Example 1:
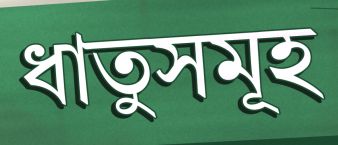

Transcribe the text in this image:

ধাতুসমূহ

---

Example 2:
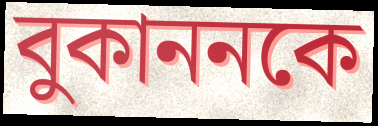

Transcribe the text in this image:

বুকাননকে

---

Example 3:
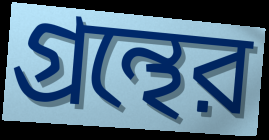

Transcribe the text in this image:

গ্রন্থের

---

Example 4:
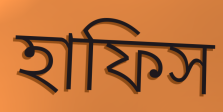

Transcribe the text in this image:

হাফিস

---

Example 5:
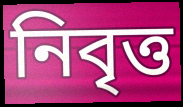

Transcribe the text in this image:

নিবৃত্ত